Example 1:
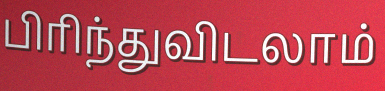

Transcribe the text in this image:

பிரிந்துவிடலாம்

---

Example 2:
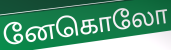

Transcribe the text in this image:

னேகொலோ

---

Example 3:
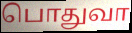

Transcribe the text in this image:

பொதுவா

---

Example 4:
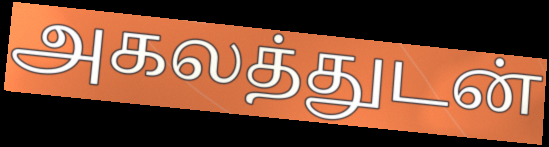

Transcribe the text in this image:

அகலத்துடன்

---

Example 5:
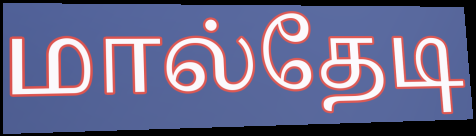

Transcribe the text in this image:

மால்தேடி